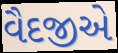
વૈદજીએ